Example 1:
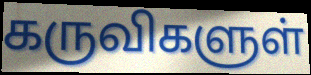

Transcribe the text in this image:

கருவிகளுள்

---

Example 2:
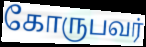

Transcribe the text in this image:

கோருபவர்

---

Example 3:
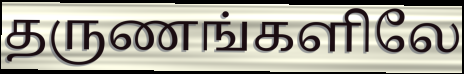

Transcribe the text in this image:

தருணங்களிலே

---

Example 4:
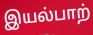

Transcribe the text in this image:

இயல்பாற்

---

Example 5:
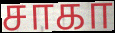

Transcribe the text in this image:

சாகா